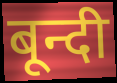
बून्दी